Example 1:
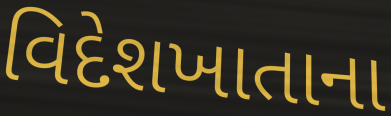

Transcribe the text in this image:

વિદેશખાતાના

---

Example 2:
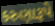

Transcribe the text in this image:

કરુણારૂપે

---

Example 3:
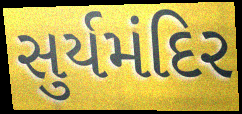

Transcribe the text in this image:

સુર્યમંદિર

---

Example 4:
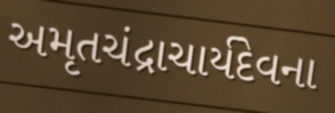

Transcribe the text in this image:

અમૃતચંદ્રાચાર્યદેવના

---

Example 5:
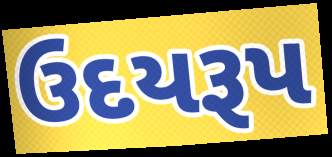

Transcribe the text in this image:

ઉદયરૂપ